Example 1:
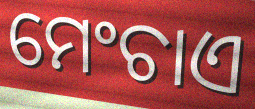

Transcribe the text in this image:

ମେଂଚାଏ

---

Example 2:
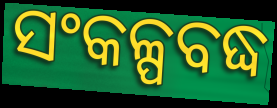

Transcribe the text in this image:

ସଂକଳ୍ପବଦ୍ଧ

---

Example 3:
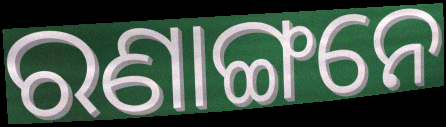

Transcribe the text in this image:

ରଣାଙ୍ଗନେ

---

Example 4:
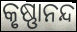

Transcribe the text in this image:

କୃଷ୍ଣାନନ୍ଦ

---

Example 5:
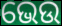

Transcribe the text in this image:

ଭେଉ